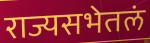
राज्यसभेतलं